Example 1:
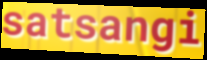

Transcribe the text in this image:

satsangi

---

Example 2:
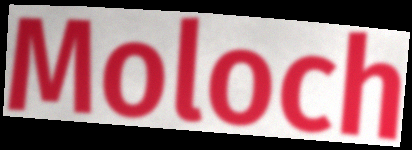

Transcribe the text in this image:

Moloch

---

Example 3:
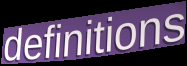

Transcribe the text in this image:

definitions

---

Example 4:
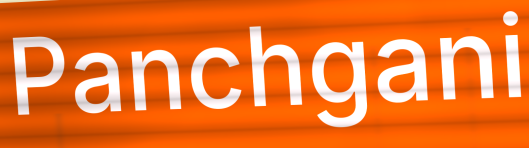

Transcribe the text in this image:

Panchgani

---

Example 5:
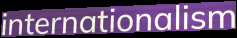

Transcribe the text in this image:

internationalism